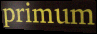
primum